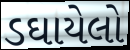
ડઘાયેલો